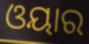
ଓୟାର